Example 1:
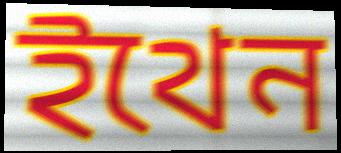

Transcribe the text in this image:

ইথেন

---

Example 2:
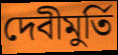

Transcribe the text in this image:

দেবীমুর্তি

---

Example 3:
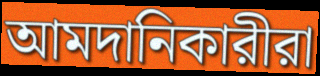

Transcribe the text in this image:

আমদানিকারীরা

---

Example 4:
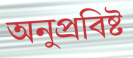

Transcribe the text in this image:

অনুপ্রবিষ্ট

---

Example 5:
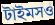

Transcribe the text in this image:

টাইমসও